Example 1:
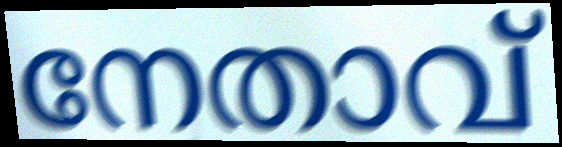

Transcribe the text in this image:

നേതാവ്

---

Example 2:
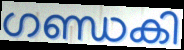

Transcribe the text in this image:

ഗണ്ഡകി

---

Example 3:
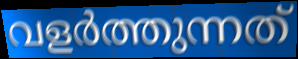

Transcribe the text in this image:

വളർത്തുന്നത്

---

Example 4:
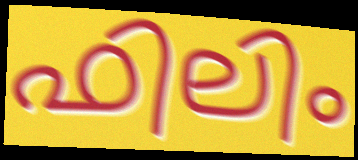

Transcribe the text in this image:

ഫിലിം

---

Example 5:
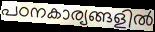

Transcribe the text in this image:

പഠനകാര്യങ്ങളിൽ